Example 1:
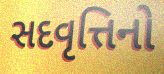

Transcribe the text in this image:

સદવૃત્તિનો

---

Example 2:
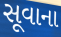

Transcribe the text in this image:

સૂવાના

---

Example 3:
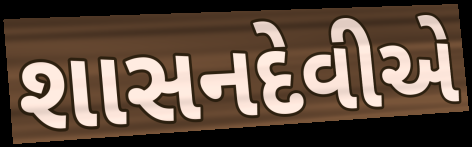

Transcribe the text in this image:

શાસનદેવીએ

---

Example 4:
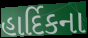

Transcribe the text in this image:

હાર્દિકના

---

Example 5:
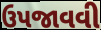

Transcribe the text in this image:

ઉપજાવવી